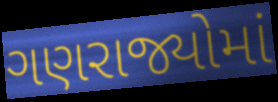
ગણરાજ્યોમાં